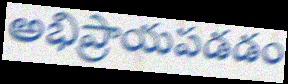
అభిప్రాయపడడం